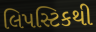
લિપસ્ટિકથી